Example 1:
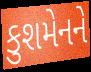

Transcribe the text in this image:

કુશમેનને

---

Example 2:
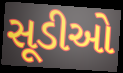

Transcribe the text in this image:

સૂડીઓ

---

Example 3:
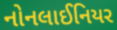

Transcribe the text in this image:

નોનલાઈનિયર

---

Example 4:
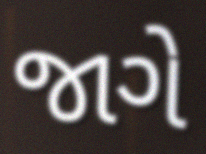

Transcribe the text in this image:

જાગે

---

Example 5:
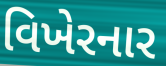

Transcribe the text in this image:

વિખેરનાર